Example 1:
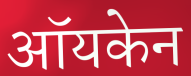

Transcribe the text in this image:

ऑयकेन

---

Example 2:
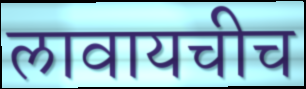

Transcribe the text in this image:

लावायचीच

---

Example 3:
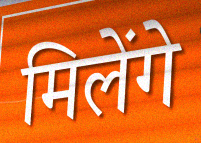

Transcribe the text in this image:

मिलेंगे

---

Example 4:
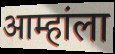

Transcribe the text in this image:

आम्हांला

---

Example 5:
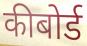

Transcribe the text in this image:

कीबोर्ड